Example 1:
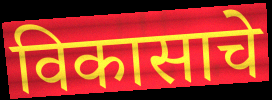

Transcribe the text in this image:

विकासाचे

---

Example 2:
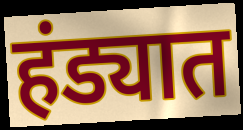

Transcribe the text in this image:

हंड्यात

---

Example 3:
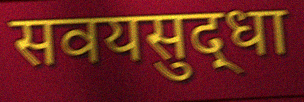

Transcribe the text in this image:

सवयसुद्धा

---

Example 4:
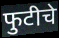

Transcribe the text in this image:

फुटीचे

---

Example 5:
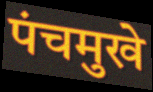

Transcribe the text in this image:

पंचमुखे